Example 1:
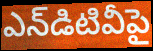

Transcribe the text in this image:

ఎన్‌డిటివీపై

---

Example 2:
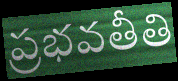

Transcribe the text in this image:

ప్రభవతీతి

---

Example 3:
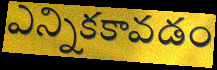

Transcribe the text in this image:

ఎన్నికకావడం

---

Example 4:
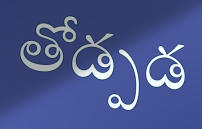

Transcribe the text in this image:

తోడ్పడ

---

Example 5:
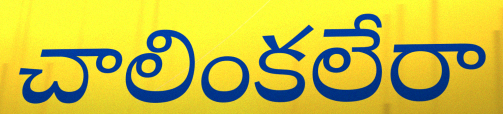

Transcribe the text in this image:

చాలింకలేరా